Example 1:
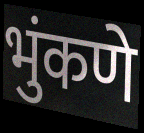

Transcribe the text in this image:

भुंकणे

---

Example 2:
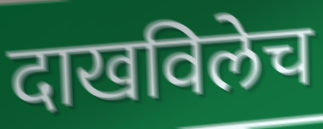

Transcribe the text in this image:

दाखविलेच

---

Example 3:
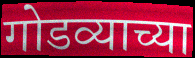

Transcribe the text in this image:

गोडव्याच्या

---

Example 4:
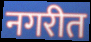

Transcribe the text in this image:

नगरीत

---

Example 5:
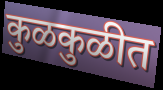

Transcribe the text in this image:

कुळकुळीत